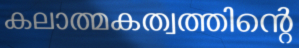
കലാത്മകത്വത്തിന്റെ